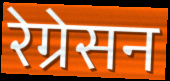
रेग्रेसन